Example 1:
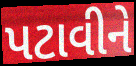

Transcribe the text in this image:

પટાવીને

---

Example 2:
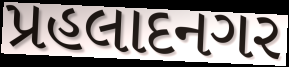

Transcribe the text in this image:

પ્રહલાદનગર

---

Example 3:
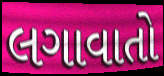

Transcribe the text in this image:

લગાવાતો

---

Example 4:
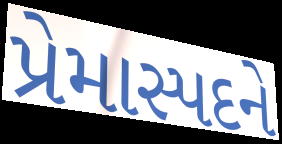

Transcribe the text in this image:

પ્રેમાસ્પદને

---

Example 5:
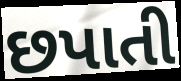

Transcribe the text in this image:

છપાતી